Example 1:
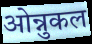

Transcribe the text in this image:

ओन्नुकल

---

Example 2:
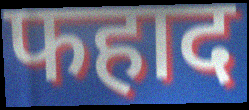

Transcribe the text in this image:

फहाद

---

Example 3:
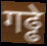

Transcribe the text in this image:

गढ्ढे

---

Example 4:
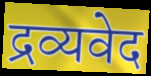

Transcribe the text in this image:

द्रव्यवेद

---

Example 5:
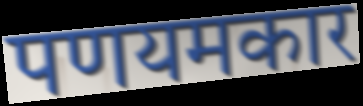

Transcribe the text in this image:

पणयमकार